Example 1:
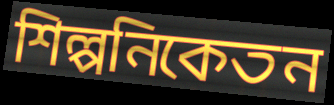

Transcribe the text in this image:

শিল্পনিকেতন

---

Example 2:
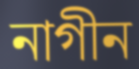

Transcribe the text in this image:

নাগীন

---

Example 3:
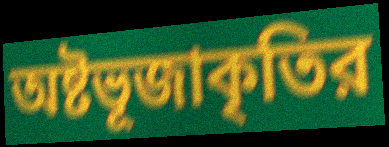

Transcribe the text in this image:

অষ্টভূজাকৃতির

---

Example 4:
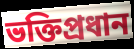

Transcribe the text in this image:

ভক্তিপ্রধান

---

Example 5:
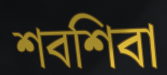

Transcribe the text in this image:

শবশিবা